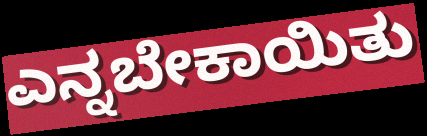
ಎನ್ನಬೇಕಾಯಿತು